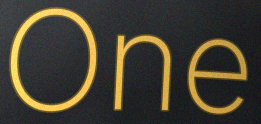
One